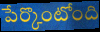
పేర్కొంటోంది